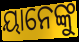
ୟାନେଙ୍କୁ